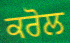
ਕਰੋਲ